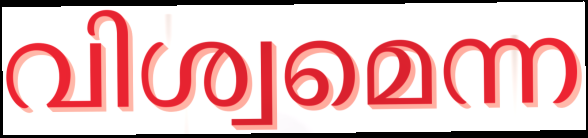
വിശ്വമെന്ന